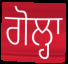
ਗੋਲ੍ਹਾ